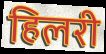
हिलरी